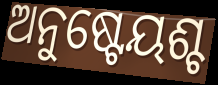
ଅନୁଷ୍ଟେୟଶ୍ଚ